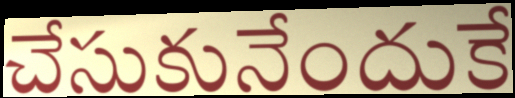
చేసుకునేందుకే